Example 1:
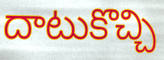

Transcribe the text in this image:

దాటుకొచ్చి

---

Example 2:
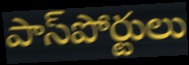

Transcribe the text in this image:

పాస్‌పోర్టులు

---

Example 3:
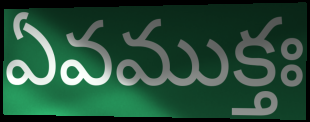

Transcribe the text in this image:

ఏవముక్తః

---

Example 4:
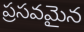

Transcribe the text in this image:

ప్రసవమైన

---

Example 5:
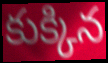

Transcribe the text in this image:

కుక్కిన